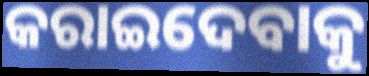
କରାଇଦେବାକୁ